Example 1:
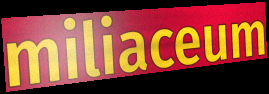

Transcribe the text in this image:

miliaceum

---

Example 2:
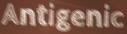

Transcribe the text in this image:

Antigenic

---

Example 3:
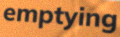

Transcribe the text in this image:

emptying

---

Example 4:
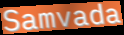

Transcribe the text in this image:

Samvada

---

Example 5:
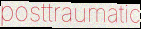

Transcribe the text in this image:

posttraumatic